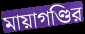
মায়াগণ্ডির